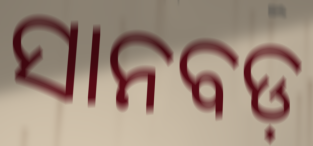
ସାନବଡ଼